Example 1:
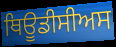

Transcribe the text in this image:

ਥਿਊਡੀਸੀਅਸ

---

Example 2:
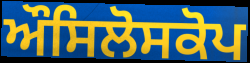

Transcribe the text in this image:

ਔਸਿਲੋਸਕੋਪ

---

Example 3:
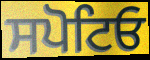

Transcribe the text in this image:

ਸਪੋਟਿਓ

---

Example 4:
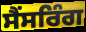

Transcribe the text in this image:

ਸੈਂਸਰਿੰਗ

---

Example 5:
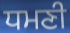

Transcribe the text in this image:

ਧਮਣੀ